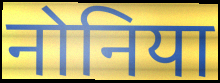
नोनिया